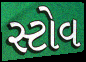
સ્ટોવ